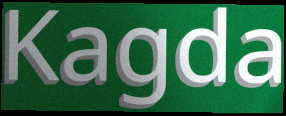
Kagda